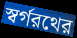
স্বর্গরথের